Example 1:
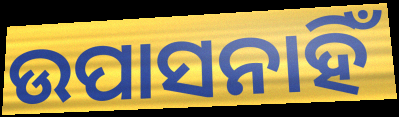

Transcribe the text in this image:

ଉପାସନାହିଁ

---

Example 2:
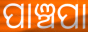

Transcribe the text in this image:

ପାଞ୍ଚପା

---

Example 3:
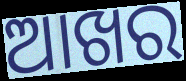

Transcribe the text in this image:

ଆଖର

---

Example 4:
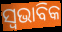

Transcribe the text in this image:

ସ୍ୱଭାବିକ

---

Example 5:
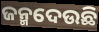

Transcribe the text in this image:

ଜନ୍ମଦେଉଛି